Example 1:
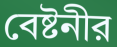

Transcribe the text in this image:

বেষ্টনীর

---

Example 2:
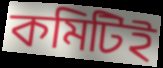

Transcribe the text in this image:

কমিটিই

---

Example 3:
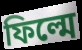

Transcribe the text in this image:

ফিল্মে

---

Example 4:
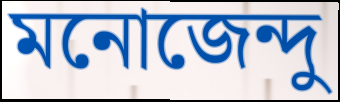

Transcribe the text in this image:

মনোজেন্দু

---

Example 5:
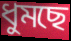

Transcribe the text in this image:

ধুমছে